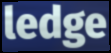
ledge